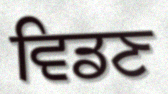
ਵਿਡਣ